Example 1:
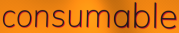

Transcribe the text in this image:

consumable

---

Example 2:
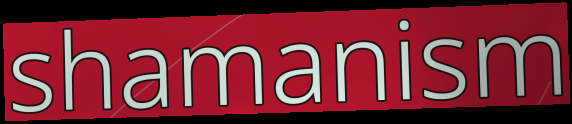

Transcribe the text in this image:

shamanism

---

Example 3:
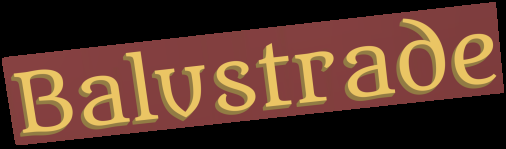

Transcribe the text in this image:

Balustrade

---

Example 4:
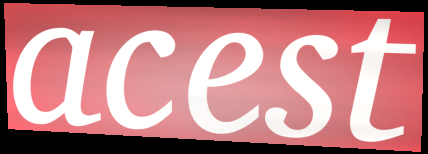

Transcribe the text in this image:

acest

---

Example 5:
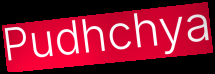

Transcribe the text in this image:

Pudhchya